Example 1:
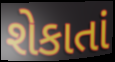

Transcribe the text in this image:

શેકાતાં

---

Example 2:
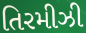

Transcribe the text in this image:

તિરમીઝી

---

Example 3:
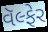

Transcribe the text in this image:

વૅલ્ફેર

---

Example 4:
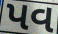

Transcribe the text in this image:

પવ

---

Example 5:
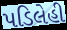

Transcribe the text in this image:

પડિલેહી